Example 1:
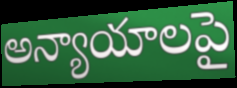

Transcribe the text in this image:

అన్యాయాలపై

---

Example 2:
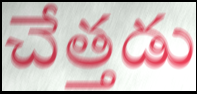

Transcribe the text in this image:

చేత్తడు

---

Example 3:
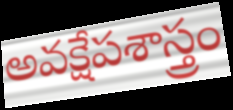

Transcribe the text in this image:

అవక్షేపశాస్త్రం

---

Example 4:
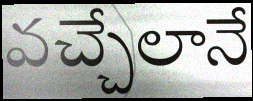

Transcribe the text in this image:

వచ్చేలానే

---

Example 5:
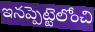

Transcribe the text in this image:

ఇనప్పెట్టెలోంచి